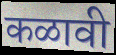
कळावी